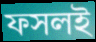
ফসলই